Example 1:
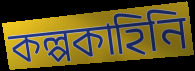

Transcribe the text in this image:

কল্পকাহিনি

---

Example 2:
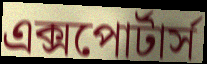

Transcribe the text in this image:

এক্সপোর্টার্স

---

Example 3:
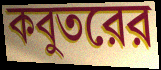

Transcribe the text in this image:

কবুতরের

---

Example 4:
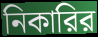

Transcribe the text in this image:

নিকারির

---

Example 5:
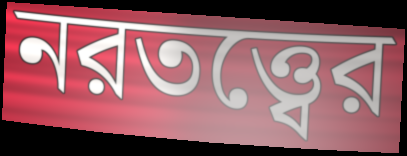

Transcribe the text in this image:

নরতত্ত্বের